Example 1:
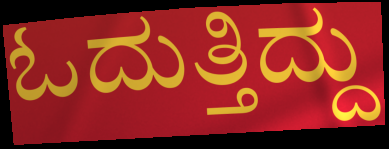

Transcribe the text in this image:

ಓದುತ್ತಿದ್ದು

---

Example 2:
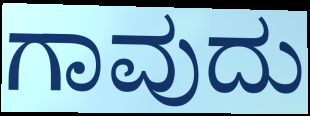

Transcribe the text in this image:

ಗಾವುದು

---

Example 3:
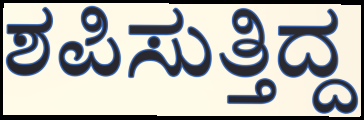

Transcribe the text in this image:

ಶಪಿಸುತ್ತಿದ್ದ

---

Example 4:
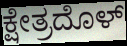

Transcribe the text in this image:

ಕ್ಷೇತ್ರದೊಳ್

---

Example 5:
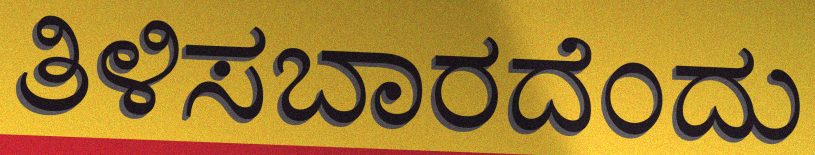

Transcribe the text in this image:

ತಿಳಿಸಬಾರದೆಂದು